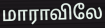
மாராவிலே